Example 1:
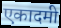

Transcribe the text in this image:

एकादमी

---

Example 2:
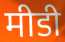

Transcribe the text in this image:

मीडी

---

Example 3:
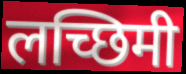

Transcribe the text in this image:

लच्छिमी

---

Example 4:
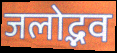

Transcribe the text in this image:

जलोद्भव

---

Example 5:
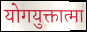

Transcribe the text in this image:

योगयुक्तात्मा